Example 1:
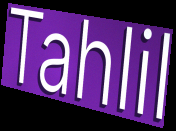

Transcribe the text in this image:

Tahlil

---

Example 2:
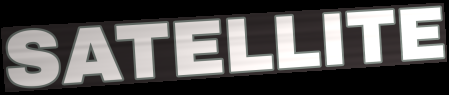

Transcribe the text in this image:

SATELLITE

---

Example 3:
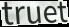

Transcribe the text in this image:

truet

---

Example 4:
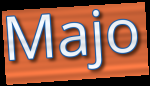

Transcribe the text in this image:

Majo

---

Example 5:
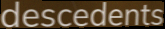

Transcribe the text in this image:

descedents